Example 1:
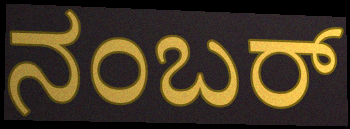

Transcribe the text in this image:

ನಂಬರ್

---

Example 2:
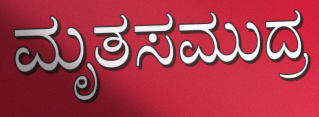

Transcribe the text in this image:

ಮೃತಸಮುದ್ರ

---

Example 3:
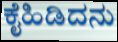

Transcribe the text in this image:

ಕೈಹಿಡಿದನು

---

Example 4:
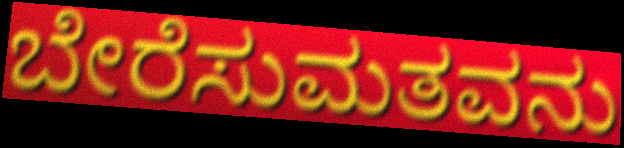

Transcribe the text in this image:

ಬೇರೆಸುಮತವನು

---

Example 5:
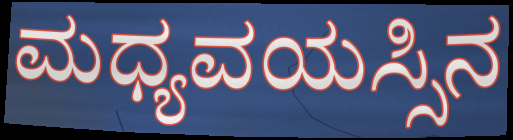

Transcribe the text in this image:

ಮಧ್ಯವಯಸ್ಸಿನ